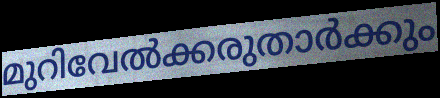
മുറിവേൽക്കരുതാർക്കും